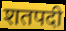
शतपदी